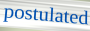
postulated